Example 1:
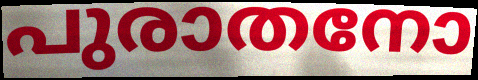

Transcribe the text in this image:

പുരാതനോ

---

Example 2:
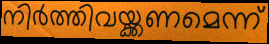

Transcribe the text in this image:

നിർത്തിവയ്ക്കണമെന്ന്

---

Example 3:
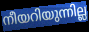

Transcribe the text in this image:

നീയറിയുന്നില്ല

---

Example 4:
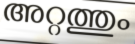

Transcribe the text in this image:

അറ്റത്തും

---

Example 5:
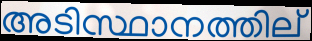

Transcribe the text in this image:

അടിസ്ഥാനത്തില്